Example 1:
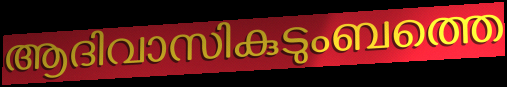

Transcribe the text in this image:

ആദിവാസികുടുംബത്തെ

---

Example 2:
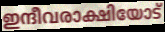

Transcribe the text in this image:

ഇന്ദീവരാക്ഷിയോട്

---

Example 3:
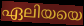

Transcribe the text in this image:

ഏലിയയെ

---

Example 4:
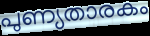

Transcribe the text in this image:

പുണ്യതാരകം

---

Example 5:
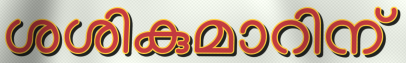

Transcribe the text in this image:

ശശികുമാറിന്